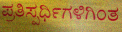
ಪ್ರತಿಸ್ಪರ್ಧಿಗಳಿಗಿಂತ